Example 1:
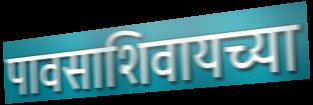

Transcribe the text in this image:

पावसाशिवायच्या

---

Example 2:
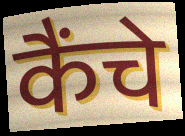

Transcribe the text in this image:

कैंचे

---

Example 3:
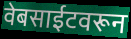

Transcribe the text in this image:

वेबसाईटवरून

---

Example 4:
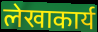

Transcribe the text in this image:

लेखाकार्य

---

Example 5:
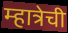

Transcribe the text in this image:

म्हात्रेची